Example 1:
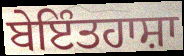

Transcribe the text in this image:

ਬੇਇੰਤਹਾਸ਼ਾ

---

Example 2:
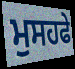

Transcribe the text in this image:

ਮੁਸਹਫੇ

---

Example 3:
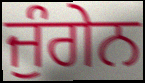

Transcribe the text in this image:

ਜੁੰਗੇਨ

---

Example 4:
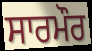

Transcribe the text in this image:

ਸਾਰਮੌਰ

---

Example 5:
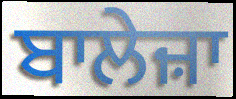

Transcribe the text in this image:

ਬਾਲੇਜ਼ਾ